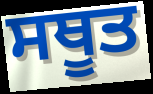
ਸਥੂਤ